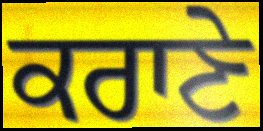
ਕਰਾਣੇ